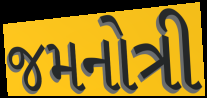
જમનોત્રી